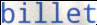
billet